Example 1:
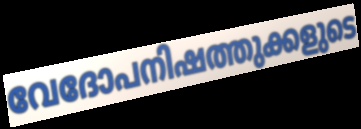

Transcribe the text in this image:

വേദോപനിഷത്തുക്കളുടെ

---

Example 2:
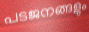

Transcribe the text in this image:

പടജനങ്ങളും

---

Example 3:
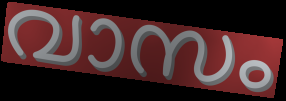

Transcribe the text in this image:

വാസം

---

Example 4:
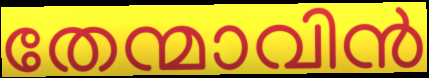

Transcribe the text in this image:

തേന്മാവിൻ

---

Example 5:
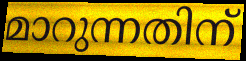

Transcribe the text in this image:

മാറുന്നതിന്